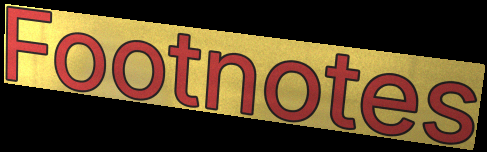
Footnotes